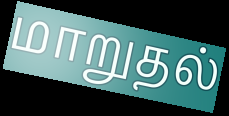
மாறுதல்